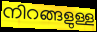
നിറങ്ങളുള്ള